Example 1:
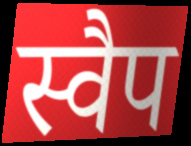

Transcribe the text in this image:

स्वैप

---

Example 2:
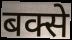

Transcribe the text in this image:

बक्से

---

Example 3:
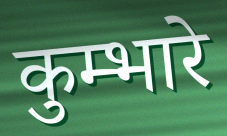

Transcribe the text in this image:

कुम्भारे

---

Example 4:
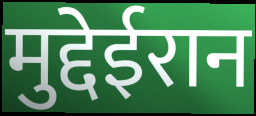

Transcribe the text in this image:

मुद्देईरान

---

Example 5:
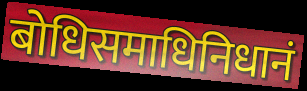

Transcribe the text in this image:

बोधिसमाधिनिधानं